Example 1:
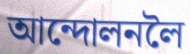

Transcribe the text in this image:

আন্দোলনলৈ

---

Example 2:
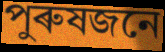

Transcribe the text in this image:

পুৰুষজনে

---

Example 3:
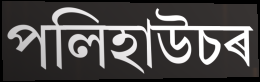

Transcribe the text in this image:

পলিহাউচৰ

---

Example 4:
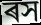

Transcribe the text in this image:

ৰস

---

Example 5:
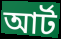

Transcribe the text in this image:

আৰ্ট